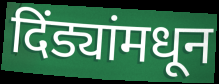
दिंड्यांमधून